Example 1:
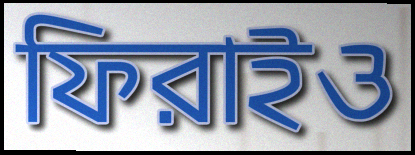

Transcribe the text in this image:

ফিরাইও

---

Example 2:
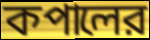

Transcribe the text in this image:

কপালের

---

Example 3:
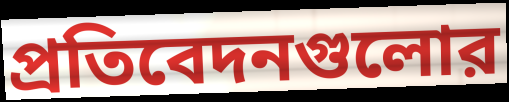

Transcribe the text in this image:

প্রতিবেদনগুলোর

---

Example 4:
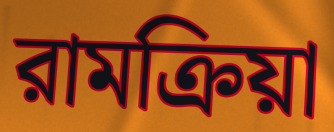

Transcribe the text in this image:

রামক্রিয়া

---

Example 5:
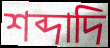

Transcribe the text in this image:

শব্দাদি